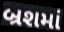
બ્રશમાં